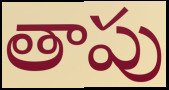
తాపు